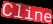
Cline